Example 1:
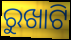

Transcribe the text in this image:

ରୁଖାଟି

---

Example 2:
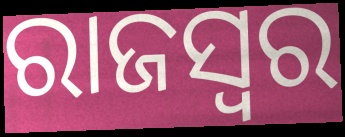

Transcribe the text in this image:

ରାଜସ୍ବର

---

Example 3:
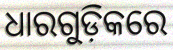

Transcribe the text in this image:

ଧାରଗୁଡ଼ିକରେ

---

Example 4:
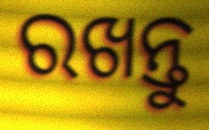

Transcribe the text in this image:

ରଖନ୍ତୁ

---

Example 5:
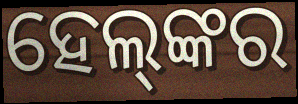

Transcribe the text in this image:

ହେଲ୍‌ଙ୍କର